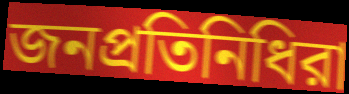
জনপ্রতিনিধিরা